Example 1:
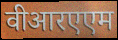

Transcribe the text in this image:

वीआरएएम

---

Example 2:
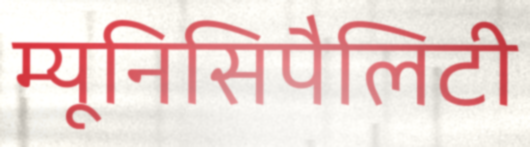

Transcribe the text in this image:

म्यूनिसिपैलिटी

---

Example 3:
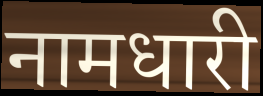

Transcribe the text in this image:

नामधारी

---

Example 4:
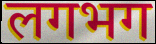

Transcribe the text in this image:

लगभग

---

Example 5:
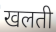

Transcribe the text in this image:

खलती